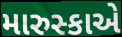
મારુસ્કાએ